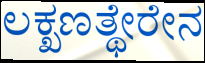
ಲಕ್ಖಣತ್ಥೇರೇನ